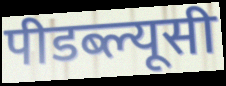
पीडब्ल्यूसी